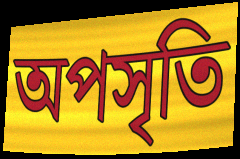
অপসৃতি